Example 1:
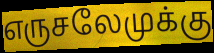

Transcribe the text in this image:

எருசலேமுக்கு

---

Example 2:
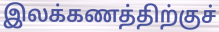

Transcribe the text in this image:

இலக்கணத்திற்குச்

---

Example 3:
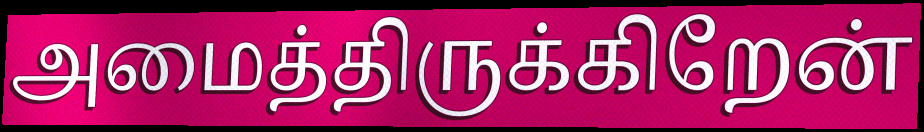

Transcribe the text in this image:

அமைத்திருக்கிறேன்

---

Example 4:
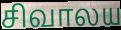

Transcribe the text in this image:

சிவாலய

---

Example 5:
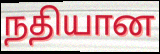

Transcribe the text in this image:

நதியான